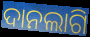
ଦାନଲାଗି